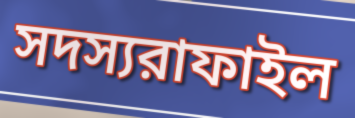
সদস্যরাফাইল